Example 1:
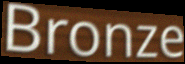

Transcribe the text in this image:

Bronze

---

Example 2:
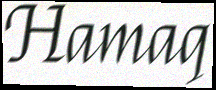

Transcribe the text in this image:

Hamaq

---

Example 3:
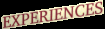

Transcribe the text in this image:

EXPERIENCES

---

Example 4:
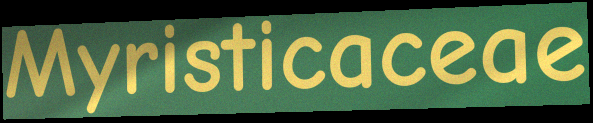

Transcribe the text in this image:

Myristicaceae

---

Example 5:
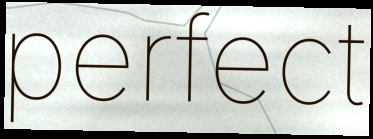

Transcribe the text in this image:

perfect